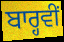
ਬਾਰ੍ਹਵੀਂ